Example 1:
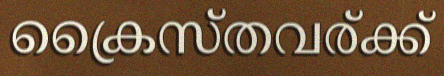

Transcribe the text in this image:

ക്രൈസ്തവര്ക്ക്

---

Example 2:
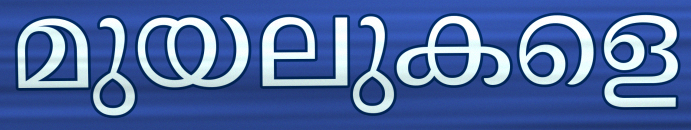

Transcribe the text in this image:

മുയലുകളെ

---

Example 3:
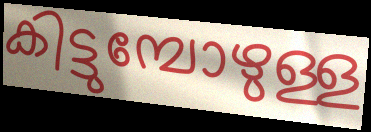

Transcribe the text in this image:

കിട്ടുമ്പോഴുള്ള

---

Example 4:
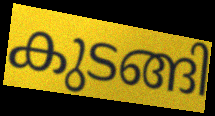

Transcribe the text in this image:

കുടങ്ങി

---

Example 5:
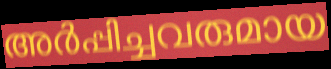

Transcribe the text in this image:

അർപ്പിച്ചവരുമായ